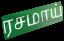
ரசமாய்